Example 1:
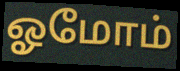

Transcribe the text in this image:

ஓமோம்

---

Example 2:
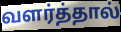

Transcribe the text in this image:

வளர்த்தால்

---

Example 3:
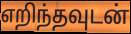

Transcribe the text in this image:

எறிந்தவுடன்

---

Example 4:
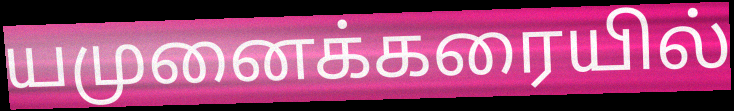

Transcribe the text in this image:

யமுனைக்கரையில்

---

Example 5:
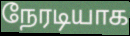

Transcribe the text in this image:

நேரடியாக